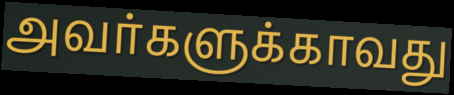
அவர்களுக்காவது